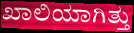
ಖಾಲಿಯಾಗಿತ್ತು